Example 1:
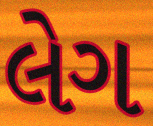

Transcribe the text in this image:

લેગ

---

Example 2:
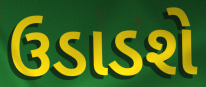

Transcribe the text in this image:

ઉડાડશે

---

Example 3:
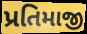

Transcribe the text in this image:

પ્રતિમાજી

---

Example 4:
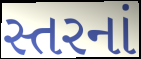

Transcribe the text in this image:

સ્તરનાં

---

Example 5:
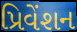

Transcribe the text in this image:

પ્રિવેંશન